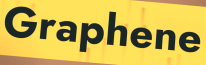
Graphene